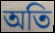
অতি